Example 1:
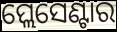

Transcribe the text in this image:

ପ୍ଲେସେଣ୍ଟାର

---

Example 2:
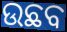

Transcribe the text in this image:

ଉଛବ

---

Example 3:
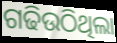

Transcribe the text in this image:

ଗଢିଉଠିଥିଲା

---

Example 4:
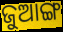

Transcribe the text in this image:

ଜୁଆଙ୍ଗ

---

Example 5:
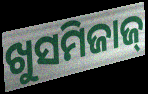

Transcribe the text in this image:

ଖୁସମିଜାଜ୍